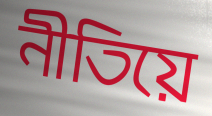
নীতিয়ে